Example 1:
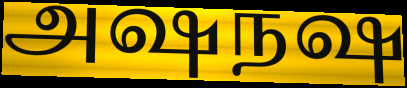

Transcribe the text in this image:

அஷநஷ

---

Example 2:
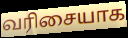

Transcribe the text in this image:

வரிசையாக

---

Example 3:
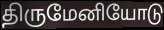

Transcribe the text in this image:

திருமேனியோடு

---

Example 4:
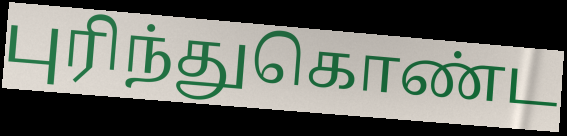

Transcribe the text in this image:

புரிந்துகொண்ட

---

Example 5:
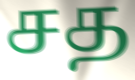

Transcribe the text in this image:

சத